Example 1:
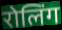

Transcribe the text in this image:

रोलिंग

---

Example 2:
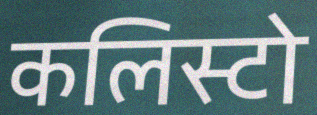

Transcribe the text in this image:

कलिस्टो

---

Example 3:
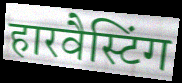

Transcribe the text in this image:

हारवैस्टिंग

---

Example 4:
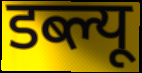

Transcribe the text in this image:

डब्ल्यू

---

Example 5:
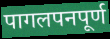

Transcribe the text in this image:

पागलपनपूर्ण